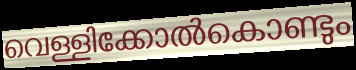
വെള്ളിക്കോൽകൊണ്ടും